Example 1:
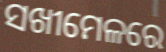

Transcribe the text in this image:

ସଖୀମେଳରେ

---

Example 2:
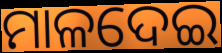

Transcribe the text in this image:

ମାଳଦେଇ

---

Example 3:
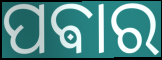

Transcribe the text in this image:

ପଵାର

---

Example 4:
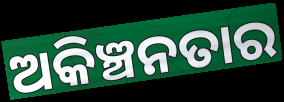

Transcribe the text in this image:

ଅକିଞ୍ଚନତାର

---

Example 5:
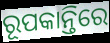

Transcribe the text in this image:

ରୂପକାନ୍ତିରେ